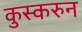
कुस्करुन